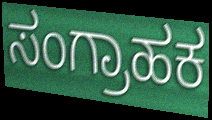
ಸಂಗ್ರಾಹಕ